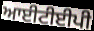
ਆਈਟੀਈਪੀ